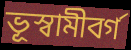
ভূস্বামীবর্গ